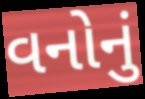
વનોનું